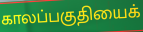
காலப்பகுதியைக்